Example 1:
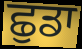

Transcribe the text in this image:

ਛੁਡਾ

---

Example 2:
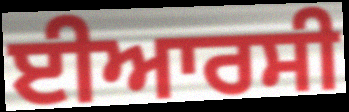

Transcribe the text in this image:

ਈਆਰਸੀ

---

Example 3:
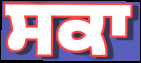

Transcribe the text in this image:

ਸਕਾ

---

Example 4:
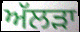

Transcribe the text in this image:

ਅੱਲੜਾ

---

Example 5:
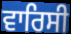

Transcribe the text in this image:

ਵਾਰਿਸੀ